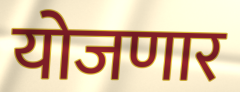
योजणार